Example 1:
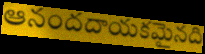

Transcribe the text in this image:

ఆనందదాయకమైనది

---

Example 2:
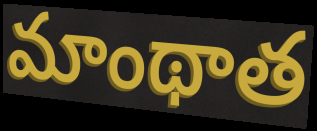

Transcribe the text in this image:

మాంథాత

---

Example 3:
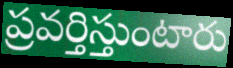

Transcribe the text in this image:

ప్రవర్తిస్తుంటారు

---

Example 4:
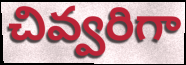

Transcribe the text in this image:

చివ్వరిగా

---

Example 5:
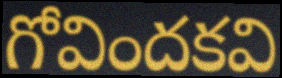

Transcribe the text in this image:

గోవిందకవి